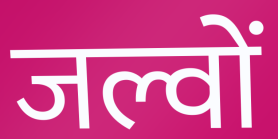
जल्वों